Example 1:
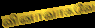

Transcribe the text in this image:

வினாவாகவே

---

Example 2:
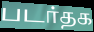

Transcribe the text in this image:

படர்தக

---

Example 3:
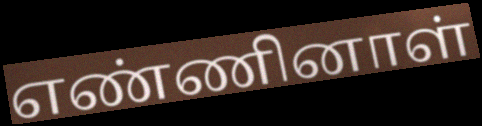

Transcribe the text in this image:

எண்ணினாள்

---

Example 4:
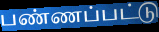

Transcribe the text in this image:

பண்ணப்பட்டு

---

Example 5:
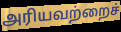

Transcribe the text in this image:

அரியவற்றைச்